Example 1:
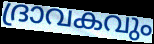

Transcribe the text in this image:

ദ്രാവകവും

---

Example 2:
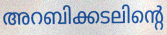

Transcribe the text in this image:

അറബിക്കടലിന്റെ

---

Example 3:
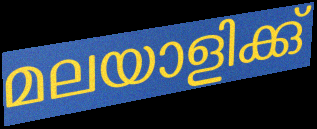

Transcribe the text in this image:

മലയാളിക്കു്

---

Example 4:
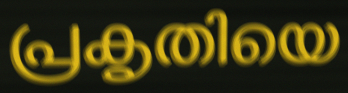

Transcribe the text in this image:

പ്രകൃതിയെ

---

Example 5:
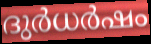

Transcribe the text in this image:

ദുർധർഷം